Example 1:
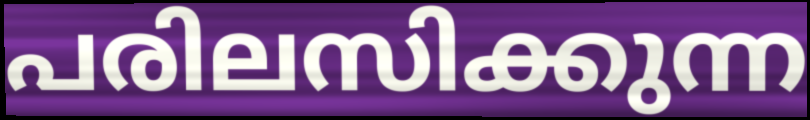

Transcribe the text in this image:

പരിലസിക്കുന്ന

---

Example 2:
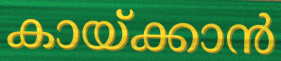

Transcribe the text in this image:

കായ്ക്കാൻ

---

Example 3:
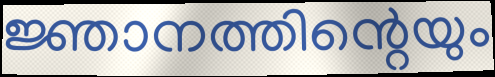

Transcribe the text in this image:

ജ്ഞാനത്തിന്റെയും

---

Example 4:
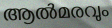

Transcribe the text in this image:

ആൽമരവും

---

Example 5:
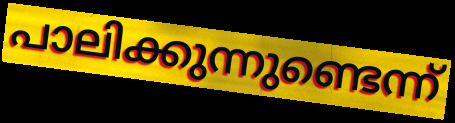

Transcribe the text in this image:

പാലിക്കുന്നുണ്ടെന്ന്